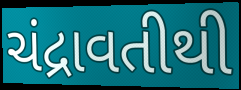
ચંદ્રાવતીથી